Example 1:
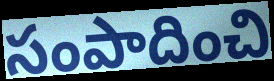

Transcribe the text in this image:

సంపాదించి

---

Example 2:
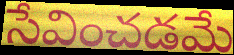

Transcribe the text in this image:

సేవించడమే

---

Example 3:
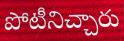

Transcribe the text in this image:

పోటీనిచ్చారు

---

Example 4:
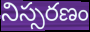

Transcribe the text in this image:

నిస్సరణం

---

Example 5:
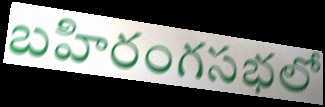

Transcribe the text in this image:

బహిరంగసభలో